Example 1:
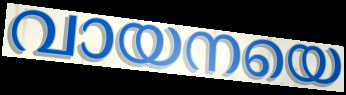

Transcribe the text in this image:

വായനയെ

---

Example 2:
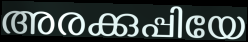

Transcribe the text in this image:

അരക്കുപ്പിയേ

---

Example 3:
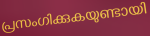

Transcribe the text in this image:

പ്രസംഗിക്കുകയുണ്ടായി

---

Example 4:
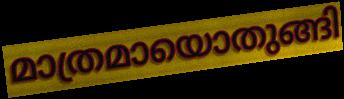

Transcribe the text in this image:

മാത്രമായൊതുങ്ങി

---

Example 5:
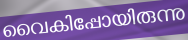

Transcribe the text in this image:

വൈകിപ്പോയിരുന്നു